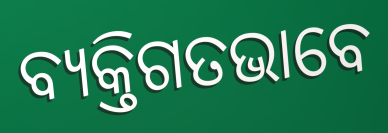
ବ୍ୟକ୍ତିଗତଭାବେ